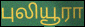
புலியூரா